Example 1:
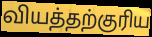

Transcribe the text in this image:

வியத்தற்குரிய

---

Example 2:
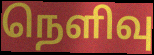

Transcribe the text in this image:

நெளிவு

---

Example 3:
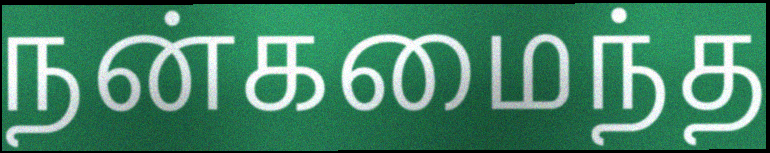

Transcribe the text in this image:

நன்கமைந்த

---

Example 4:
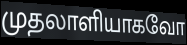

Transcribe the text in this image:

முதலாளியாகவோ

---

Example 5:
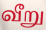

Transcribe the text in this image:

வீறு